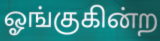
ஓங்குகின்ற